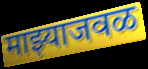
माझ्याजवळ